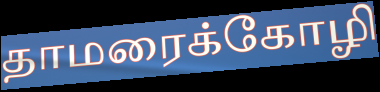
தாமரைக்கோழி